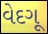
વેદગૂ